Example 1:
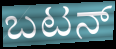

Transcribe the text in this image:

ಬಟನ್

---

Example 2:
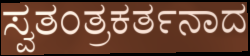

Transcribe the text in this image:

ಸ್ವತಂತ್ರಕರ್ತನಾದ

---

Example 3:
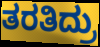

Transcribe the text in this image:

ತರತಿದ್ರು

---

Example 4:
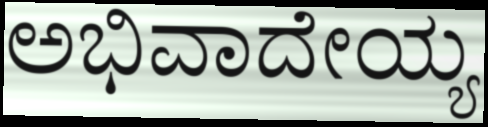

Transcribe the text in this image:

ಅಭಿವಾದೇಯ್ಯ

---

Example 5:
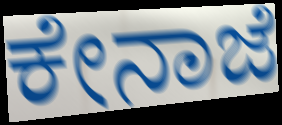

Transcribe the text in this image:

ಕೇನಾಜೆ